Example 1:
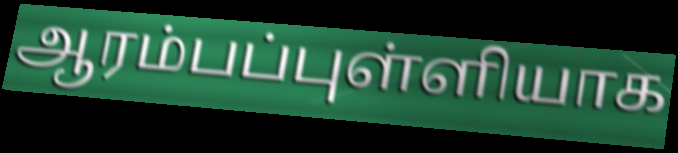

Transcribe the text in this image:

ஆரம்பப்புள்ளியாக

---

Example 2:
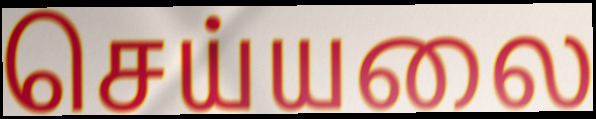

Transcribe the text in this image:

செய்யலை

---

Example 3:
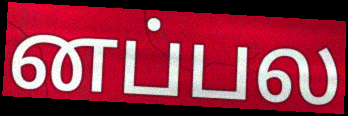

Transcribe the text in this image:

னப்பல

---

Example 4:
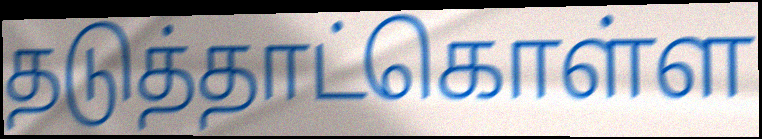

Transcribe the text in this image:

தடுத்தாட்கொள்ள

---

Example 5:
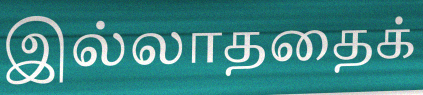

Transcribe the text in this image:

இல்லாததைக்